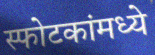
स्फोटकांमध्ये